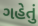
ગહેતું